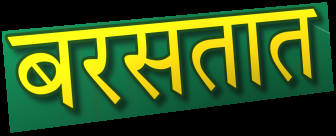
बरसतात